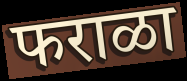
फराळा